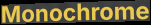
Monochrome